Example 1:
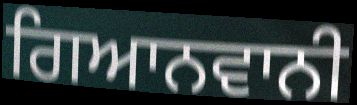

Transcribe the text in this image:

ਗਿਆਨਵਾਨੀ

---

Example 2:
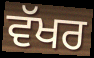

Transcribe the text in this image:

ਵੱਖਰ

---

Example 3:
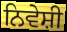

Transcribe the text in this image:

ਨਿਵੇਸ਼ੀ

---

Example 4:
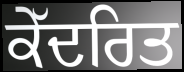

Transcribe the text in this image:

ਕੇੱਦਰਿਤ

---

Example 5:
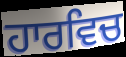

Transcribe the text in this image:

ਹਾਰਵਿਚ